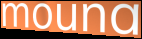
mouna